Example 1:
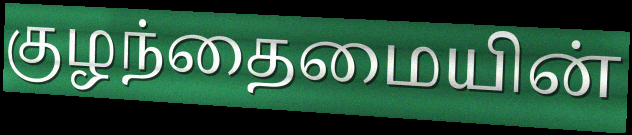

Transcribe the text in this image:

குழந்தைமையின்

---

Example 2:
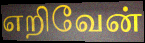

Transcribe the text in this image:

எறிவேன்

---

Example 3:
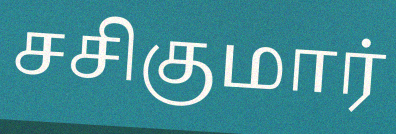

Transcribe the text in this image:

சசிகுமார்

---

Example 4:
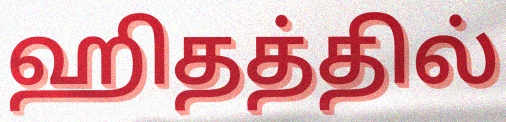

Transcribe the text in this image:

ஹிதத்தில்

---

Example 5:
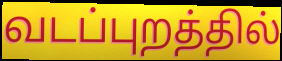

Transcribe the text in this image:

வடப்புறத்தில்